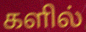
களில்